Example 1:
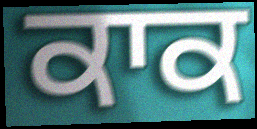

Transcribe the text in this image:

ਕਾਕ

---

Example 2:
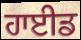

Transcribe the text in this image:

ਹਾਈਡ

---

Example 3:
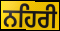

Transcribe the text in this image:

ਨਹਿਰੀ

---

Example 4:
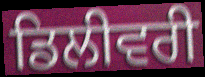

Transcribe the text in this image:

ਡਿਲੀਵਰੀ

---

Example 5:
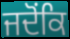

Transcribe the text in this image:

ਜਦੋਂਕਿ